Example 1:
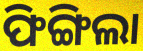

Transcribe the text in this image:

ଫିଙ୍ଗିଲା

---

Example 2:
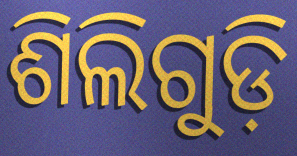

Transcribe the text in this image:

ଶିଲିଗୁଡ଼ି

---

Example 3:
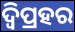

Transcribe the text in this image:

ଦ୍ବିପ୍ରହର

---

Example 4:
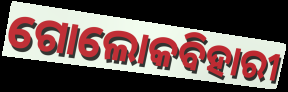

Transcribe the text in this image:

ଗୋଲୋକବିହାରୀ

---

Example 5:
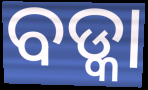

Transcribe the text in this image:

ବଡ୍କା